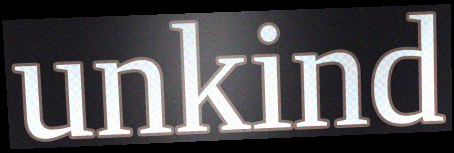
unkind